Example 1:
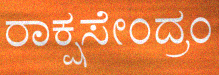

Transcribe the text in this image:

ರಾಕ್ಷಸೇಂದ್ರಂ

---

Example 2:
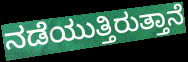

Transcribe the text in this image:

ನಡೆಯುತ್ತಿರುತ್ತಾನೆ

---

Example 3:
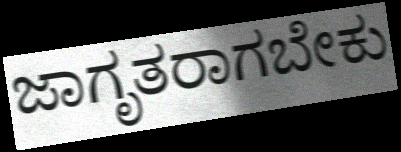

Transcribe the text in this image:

ಜಾಗೃತರಾಗಬೇಕು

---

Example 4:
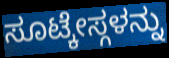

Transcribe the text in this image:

ಸೂಟ್ಕೇಸ್ಗಳನ್ನು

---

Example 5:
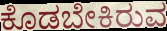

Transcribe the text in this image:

ಕೊಡಬೇಕಿರುವ